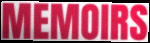
MEMOIRS